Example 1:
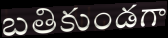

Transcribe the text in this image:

బతికుండగా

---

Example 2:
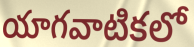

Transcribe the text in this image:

యాగవాటికలో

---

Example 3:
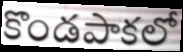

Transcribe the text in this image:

కొండపాకలో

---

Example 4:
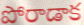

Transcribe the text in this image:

పోరాడాక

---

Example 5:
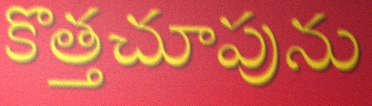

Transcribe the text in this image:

కొత్తచూపును